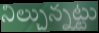
నిల్చున్నట్టు